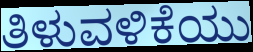
ತಿಳುವಳಿಕೆಯು